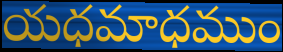
యధమాధముం